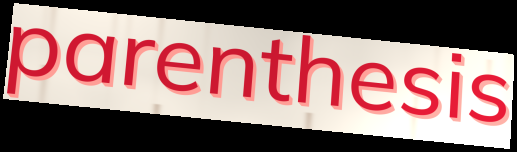
parenthesis